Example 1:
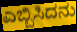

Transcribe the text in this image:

ಎಬ್ಬಿಸಿದನು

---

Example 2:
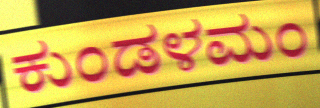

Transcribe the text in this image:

ಕುಂಡಳಮಂ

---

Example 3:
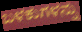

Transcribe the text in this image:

ಬಳಕುಗಳನ್ನು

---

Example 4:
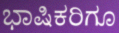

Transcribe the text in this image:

ಭಾಷಿಕರಿಗೂ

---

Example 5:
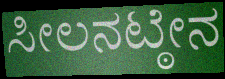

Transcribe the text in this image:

ಸೀಲನಟ್ಠೇನ